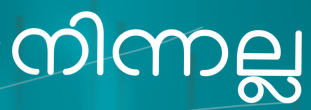
നിന്നല്ല